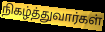
நிகழ்த்துவார்கள்